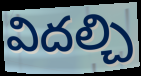
విదల్చి